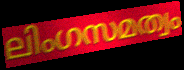
ലിംഗസമത്വം